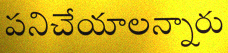
పనిచేయాలన్నారు